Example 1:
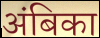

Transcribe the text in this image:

अंबिका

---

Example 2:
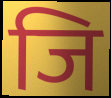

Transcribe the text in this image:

जि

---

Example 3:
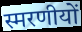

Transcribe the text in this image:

स्मरणीयों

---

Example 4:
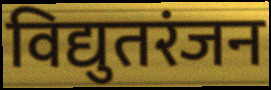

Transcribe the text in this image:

विद्युतरंजन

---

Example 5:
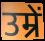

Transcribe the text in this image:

उम्रें